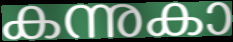
കന്നുകാ